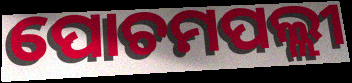
ପୋଚମପଲ୍ଲୀ